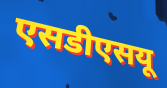
एसडीएसयू